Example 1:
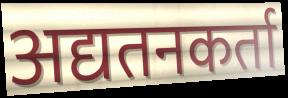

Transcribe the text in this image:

अद्यतनकर्ता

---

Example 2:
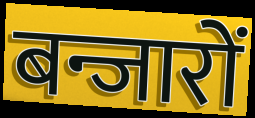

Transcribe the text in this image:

बन्जारों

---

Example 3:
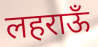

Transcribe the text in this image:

लहराऊँ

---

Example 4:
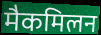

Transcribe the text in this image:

मैकमिलन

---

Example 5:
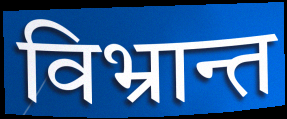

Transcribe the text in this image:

विभ्रान्त